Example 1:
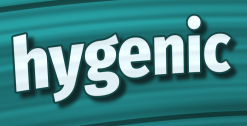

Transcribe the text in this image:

hygenic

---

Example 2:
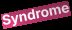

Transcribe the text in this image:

Syndrome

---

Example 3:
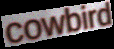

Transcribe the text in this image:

cowbird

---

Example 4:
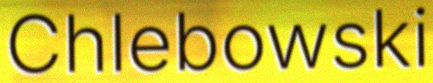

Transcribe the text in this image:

Chlebowski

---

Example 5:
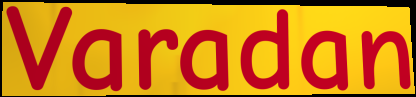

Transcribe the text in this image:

Varadan